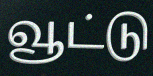
வூட்டு